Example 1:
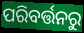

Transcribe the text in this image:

ପରିବର୍ତ୍ତନରୁ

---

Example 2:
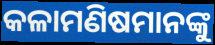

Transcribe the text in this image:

କଳାମଣିଷମାନଙ୍କୁ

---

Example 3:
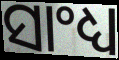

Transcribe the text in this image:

ସାଂଧ୍ୟ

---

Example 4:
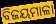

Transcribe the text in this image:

ବିଜୟମାଳା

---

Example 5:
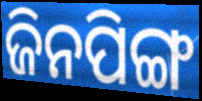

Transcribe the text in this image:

ଜିନପିଙ୍ଗ